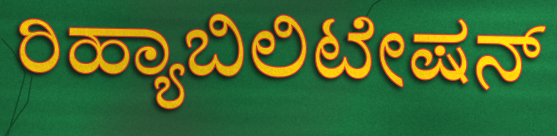
ರಿಹ್ಯಾಬಿಲಿಟೇಷನ್